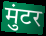
मुंटर